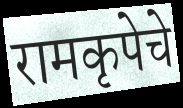
रामकृपेचे